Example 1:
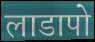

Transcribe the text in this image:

लाडापो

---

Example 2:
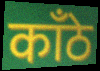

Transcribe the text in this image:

काँठे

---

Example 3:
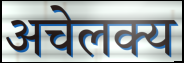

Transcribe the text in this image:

अचेलक्य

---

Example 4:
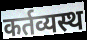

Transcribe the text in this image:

कर्तव्यस्थ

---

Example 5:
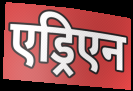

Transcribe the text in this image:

एड्रिएन